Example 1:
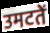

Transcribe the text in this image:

उमटतें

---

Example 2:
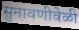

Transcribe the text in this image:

सुनावणीवेळी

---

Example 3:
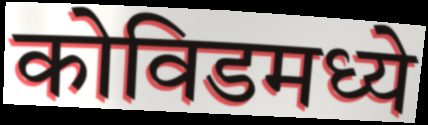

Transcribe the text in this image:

कोविडमध्ये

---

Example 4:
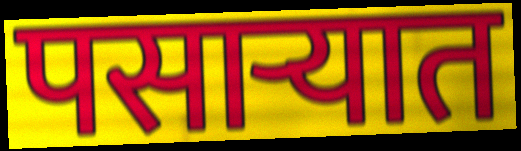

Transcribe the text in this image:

पसार्‍यात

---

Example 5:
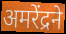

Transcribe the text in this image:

अमरेंद्रने